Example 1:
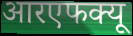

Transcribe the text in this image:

आरएफक्यू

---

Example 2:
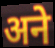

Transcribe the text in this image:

अने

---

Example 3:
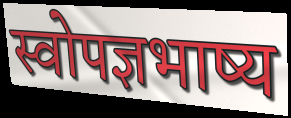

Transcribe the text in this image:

स्वोपज्ञभाष्य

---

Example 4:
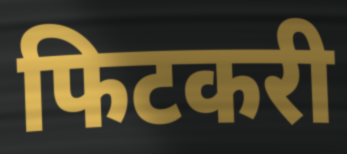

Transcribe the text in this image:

फिटकरी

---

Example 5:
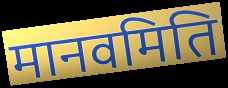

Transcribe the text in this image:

मानवमिति